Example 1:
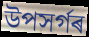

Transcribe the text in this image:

উপসৰ্গৰ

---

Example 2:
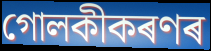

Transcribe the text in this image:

গোলকীকৰণৰ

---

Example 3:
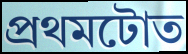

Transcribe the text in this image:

প্ৰথমটোত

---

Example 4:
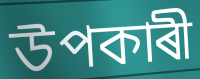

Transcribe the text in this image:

উপকাৰী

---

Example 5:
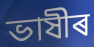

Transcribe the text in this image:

ভাষীৰ